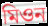
মিওন